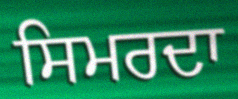
ਸਿਮਰਦਾ